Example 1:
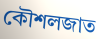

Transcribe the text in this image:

কৌশলজাত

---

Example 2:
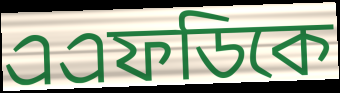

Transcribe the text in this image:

এএফডিকে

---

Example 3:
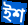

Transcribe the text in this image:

ইশ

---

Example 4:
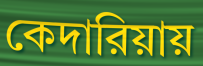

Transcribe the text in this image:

কেদারিয়ায়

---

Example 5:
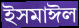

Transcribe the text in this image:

ইসমাঈল